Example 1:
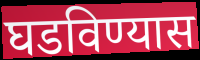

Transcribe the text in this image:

घडविण्यास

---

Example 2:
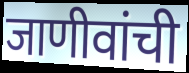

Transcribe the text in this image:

जाणीवांची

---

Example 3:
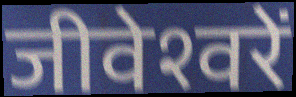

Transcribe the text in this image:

जीवेश्वरें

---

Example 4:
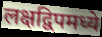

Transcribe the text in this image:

लक्षद्विपमध्ये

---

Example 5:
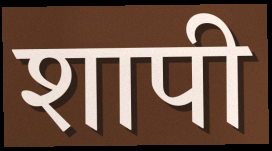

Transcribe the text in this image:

शापी